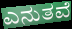
ಎನುತವೆ